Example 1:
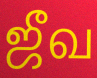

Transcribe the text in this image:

ஜீவ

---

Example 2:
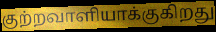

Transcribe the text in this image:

குற்றவாளியாக்குகிறது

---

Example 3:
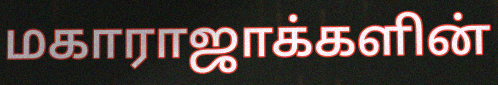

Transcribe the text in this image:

மகாராஜாக்களின்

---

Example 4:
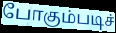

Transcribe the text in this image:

போகும்படிச்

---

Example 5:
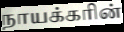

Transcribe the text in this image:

நாயக்கரின்